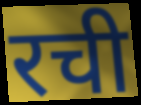
रची